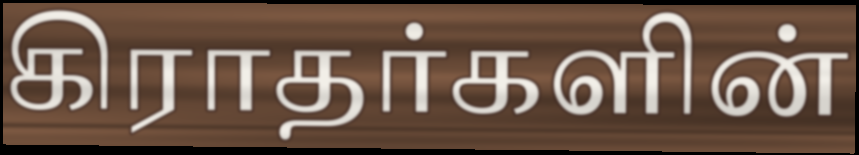
கிராதர்களின்